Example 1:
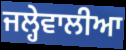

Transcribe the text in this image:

ਜਲ੍ਹੇਵਾਲੀਆ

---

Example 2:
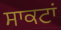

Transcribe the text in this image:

ਸਾਕਟਾਂ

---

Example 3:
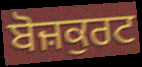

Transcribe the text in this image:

ਬੋਜ਼ਕੁਰਟ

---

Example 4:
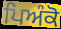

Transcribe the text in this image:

ਪਿਅੰਕੋ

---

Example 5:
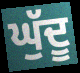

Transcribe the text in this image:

ਘੁੱਦੂ